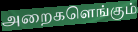
அறைகளெங்கும்